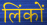
लिंकों